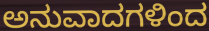
ಅನುವಾದಗಳಿಂದ